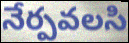
నేర్పవలసి